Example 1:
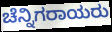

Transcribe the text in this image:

ಚೆನ್ನಿಗರಾಯರು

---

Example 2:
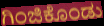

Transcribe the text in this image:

ಗಿಂಜಿಕೊಂಡು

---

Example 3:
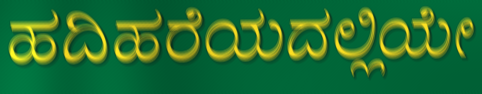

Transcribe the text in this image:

ಹದಿಹರೆಯದಲ್ಲಿಯೇ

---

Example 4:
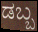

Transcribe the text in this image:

ಡಬ್ಬ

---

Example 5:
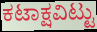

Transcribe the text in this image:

ಕಟಾಕ್ಷವಿಟ್ಟು